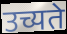
उच्यते